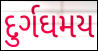
દુર્ગઘમય